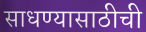
साधण्यासाठीची